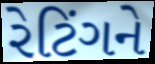
રેટિંગને